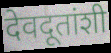
देवदूतांशी